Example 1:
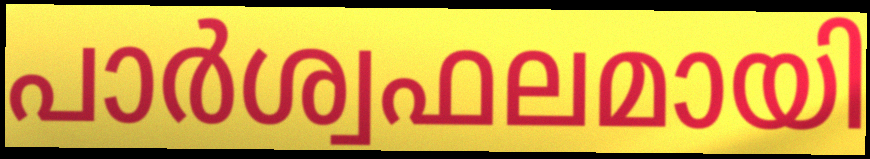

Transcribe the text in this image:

പാർശ്വഫലമായി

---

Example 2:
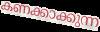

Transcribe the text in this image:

കണക്കാക്കുന്ന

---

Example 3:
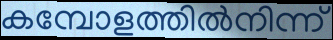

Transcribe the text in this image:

കമ്പോളത്തിൽനിന്ന്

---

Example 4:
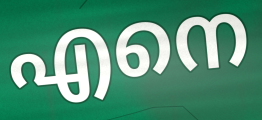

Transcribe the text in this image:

എനെ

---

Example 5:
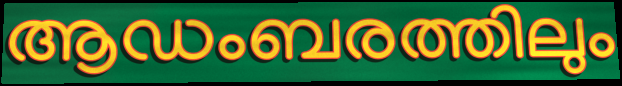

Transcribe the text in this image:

ആഡംബരത്തിലും